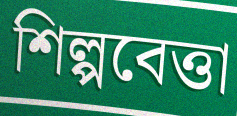
শিল্পবেত্তা